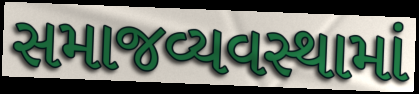
સમાજવ્યવસ્થામાં